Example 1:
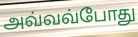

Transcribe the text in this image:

அவ்வவ்போது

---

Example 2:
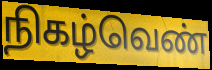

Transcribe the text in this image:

நிகழ்வெண்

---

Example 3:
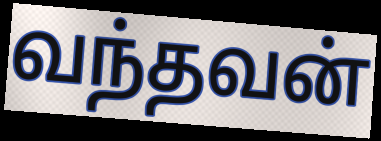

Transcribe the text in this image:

வந்தவன்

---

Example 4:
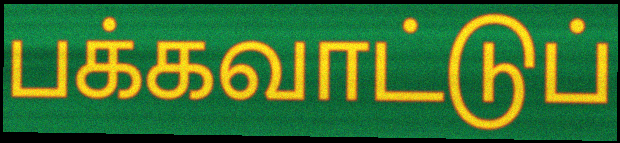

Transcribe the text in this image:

பக்கவாட்டுப்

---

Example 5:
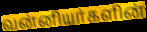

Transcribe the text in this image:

வன்னியர்களின்